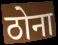
ठोना